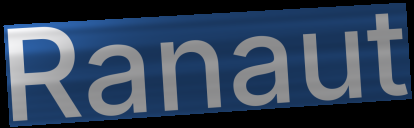
Ranaut